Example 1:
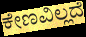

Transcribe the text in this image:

ಕೇಣವಿಲ್ಲದೆ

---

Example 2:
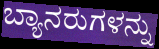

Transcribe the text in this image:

ಬ್ಯಾನರುಗಳನ್ನು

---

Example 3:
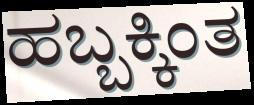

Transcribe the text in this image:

ಹಬ್ಬಕ್ಕಿಂತ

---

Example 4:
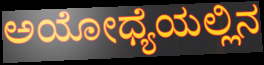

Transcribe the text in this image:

ಅಯೋಧ್ಯೆಯಲ್ಲಿನ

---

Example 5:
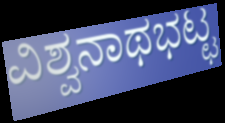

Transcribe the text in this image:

ವಿಶ್ವನಾಥಭಟ್ಟ